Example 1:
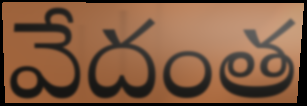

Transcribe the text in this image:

వేదంత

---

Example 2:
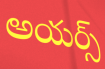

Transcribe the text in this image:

అయర్స్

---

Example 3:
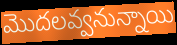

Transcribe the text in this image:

మొదలవ్వనున్నాయి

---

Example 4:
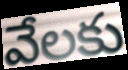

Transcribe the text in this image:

వేలకు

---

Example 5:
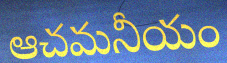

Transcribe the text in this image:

ఆచమనీయం